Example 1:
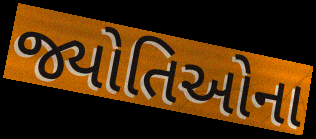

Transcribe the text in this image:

જ્યોતિઓના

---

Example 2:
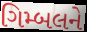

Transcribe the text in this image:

ગિમ્બલને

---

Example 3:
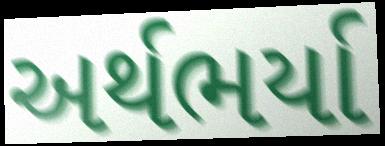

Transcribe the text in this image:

અર્થભર્યા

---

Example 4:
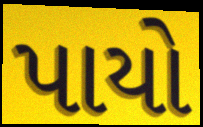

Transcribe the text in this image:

પાયો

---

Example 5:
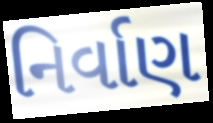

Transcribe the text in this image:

નિર્વાણ